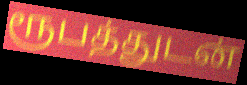
ரூபத்துடன்